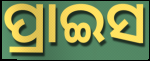
ପ୍ରାଇସ